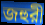
জহুরী